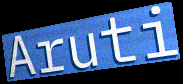
Aruti